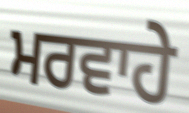
ਮਰਵਾਹੇ